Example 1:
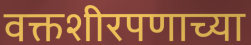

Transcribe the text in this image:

वक्तशीरपणाच्या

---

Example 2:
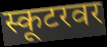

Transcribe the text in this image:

स्कूटरवर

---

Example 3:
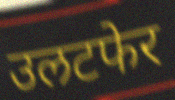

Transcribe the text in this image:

उलटफेर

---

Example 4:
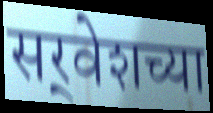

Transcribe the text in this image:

सर्वेशच्या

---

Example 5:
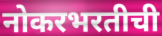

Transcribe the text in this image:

नोकरभरतीची